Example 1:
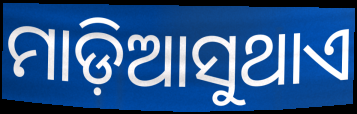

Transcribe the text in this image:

ମାଡ଼ିଆସୁଥାଏ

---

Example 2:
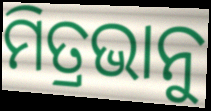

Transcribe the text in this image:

ମିତ୍ରଭାନୁ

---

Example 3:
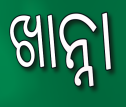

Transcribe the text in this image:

ଖାନ୍ନା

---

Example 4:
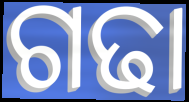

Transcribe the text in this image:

ଗଢା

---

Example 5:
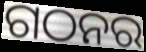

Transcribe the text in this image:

ଗଠନର